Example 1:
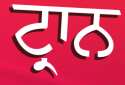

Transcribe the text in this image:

ਟ੍ਰਾਨ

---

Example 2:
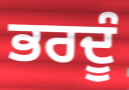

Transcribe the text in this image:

ਭਰਦੂੰ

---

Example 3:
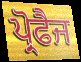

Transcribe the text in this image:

ਪ੍ਰੋਫੈਜ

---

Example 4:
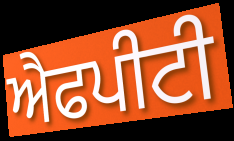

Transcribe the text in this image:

ਐਫਪੀਟੀ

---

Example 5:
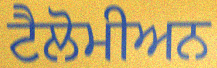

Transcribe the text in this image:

ਟੈਲੋਮੀਅਨ